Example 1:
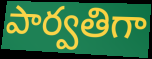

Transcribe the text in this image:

పార్వతిగా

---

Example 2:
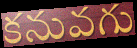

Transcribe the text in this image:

కనువగు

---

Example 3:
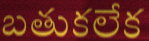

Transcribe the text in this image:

బతుకలేక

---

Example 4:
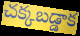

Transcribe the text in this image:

చక్కబడ్డాక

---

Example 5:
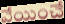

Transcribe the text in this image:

వేయించే